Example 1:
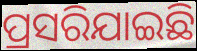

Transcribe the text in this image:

ପ୍ରସରିଯାଇଛି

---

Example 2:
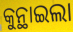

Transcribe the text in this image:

କୁନ୍ଥାଇଲା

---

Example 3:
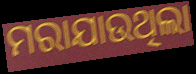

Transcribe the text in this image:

ମରାଯାଉଥିଲା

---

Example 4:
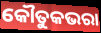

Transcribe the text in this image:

କୌତୁକଭରା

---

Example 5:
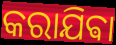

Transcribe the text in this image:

କରାଯିଵା